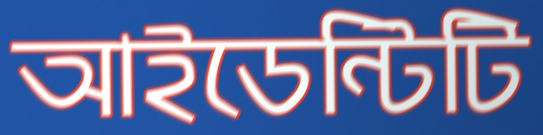
আইডেন্টিটি